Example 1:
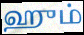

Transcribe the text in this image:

ஹும்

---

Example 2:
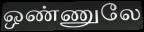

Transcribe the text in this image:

ஒண்ணுலே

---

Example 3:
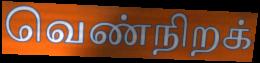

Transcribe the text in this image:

வெண்நிறக்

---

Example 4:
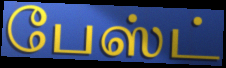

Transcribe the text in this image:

பேஸ்ட்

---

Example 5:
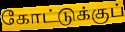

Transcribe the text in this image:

கோட்டுக்குப்